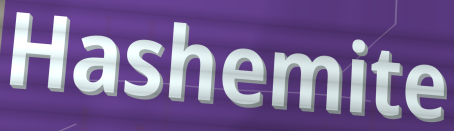
Hashemite